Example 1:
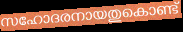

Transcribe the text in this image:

സഹോദരനായതുകൊണ്ട്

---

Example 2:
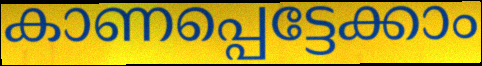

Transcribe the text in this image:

കാണപ്പെട്ടേക്കാം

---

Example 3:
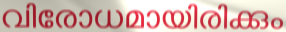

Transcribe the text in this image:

വിരോധമായിരിക്കും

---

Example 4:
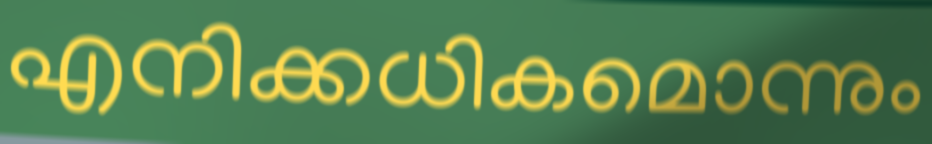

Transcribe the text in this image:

എനിക്കധികമൊന്നും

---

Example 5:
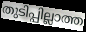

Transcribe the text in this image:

തുടിപ്പില്ലാത്ത